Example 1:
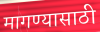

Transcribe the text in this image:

मागण्यासाठी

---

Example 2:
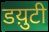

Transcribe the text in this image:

डय़ुटी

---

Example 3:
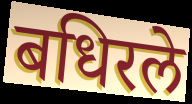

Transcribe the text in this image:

बधिरले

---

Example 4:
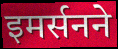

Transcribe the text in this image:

इमर्सनने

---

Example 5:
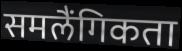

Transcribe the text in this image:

समलैंगिकता